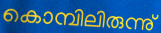
കൊമ്പിലിരുന്നു്